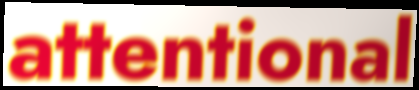
attentional